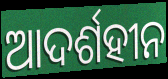
ଆଦର୍ଶହୀନ